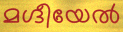
മഗ്ദീയേൽ